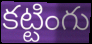
కట్టింగు